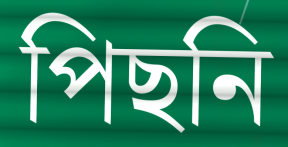
পিছনি